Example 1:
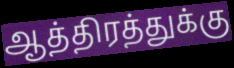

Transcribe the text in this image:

ஆத்திரத்துக்கு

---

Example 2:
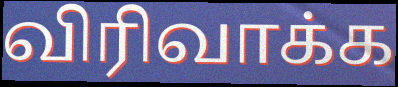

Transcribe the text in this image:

விரிவாக்க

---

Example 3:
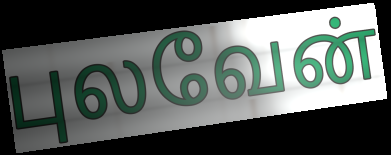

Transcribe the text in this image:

புலவேன்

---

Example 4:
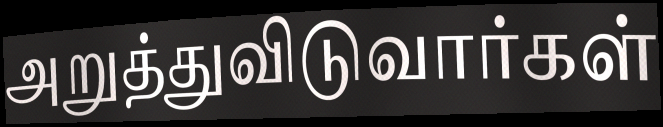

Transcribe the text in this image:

அறுத்துவிடுவார்கள்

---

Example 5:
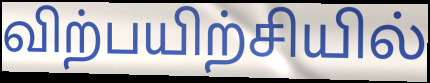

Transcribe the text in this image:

விற்பயிற்சியில்